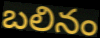
బలినం